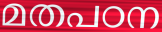
മതപഠന